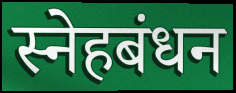
स्नेहबंधन